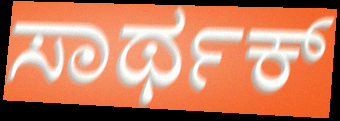
ಸಾರ್ಥಕ್